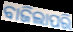
ବାଜିଲାପରି